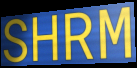
SHRM